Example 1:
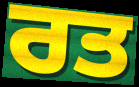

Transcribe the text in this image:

ਰਤ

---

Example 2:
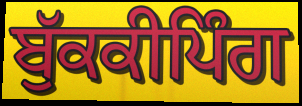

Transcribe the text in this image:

ਬੁੱਕਕੀਪਿੰਗ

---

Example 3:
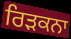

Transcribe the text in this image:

ਰਿੜਕਨਾ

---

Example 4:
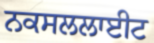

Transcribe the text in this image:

ਨਕਸਲਲਾਈਟ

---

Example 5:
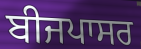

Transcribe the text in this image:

ਬੀਜਪਾਸਰ